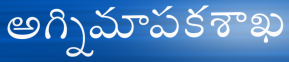
అగ్నిమాపకశాఖ